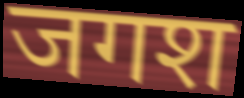
जगश